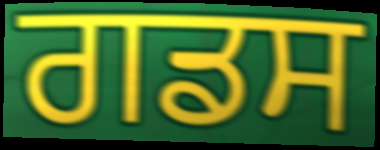
ਗਡਸ